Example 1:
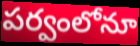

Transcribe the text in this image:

పర్వంలోనూ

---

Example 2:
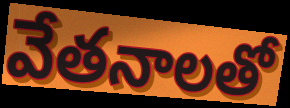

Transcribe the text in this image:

వేతనాలతో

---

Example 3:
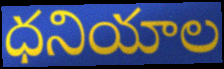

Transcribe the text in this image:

ధనియాల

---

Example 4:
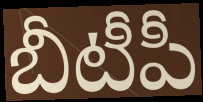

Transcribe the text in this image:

బీటీపీ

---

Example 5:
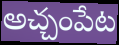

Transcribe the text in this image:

అచ్చంపేట